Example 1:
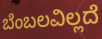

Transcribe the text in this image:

ಬೆಂಬಲವಿಲ್ಲದೆ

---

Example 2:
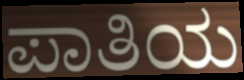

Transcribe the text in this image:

ಪಾತಿಯ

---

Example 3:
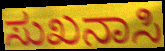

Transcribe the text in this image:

ಸುಖನಾಸಿ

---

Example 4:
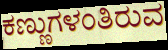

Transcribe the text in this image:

ಕಣ್ಣುಗಳಂತಿರುವ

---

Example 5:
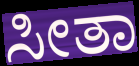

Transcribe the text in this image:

ಸೀತಾ